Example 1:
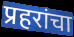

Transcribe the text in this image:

प्रहरांचा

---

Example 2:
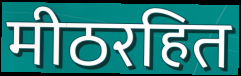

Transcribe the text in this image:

मीठरहित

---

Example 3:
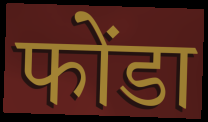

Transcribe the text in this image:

फोंडा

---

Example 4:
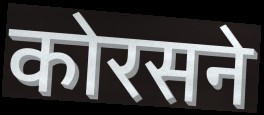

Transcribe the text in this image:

कोरसने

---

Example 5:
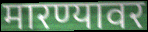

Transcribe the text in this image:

मारण्यावर